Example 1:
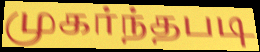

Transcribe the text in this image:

முகர்ந்தபடி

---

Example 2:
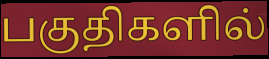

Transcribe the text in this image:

பகுதிகளில்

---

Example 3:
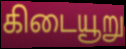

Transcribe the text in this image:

கிடையூறு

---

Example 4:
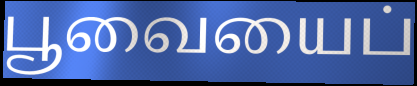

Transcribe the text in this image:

பூவையைப்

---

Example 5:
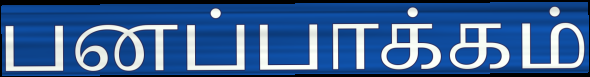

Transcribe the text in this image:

பனப்பாக்கம்